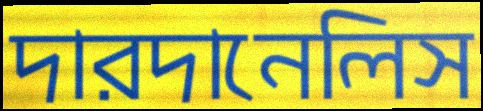
দারদানেলিস